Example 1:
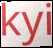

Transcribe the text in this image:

kyi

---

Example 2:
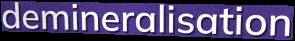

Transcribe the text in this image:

demineralisation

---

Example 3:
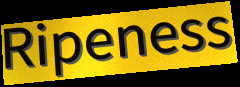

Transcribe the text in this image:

Ripeness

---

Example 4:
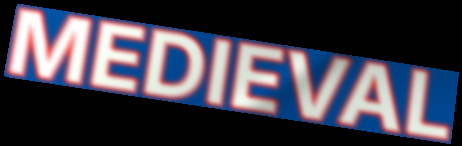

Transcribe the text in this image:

MEDIEVAL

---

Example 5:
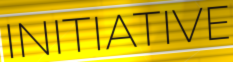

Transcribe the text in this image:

INITIATIVE